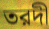
তরদী